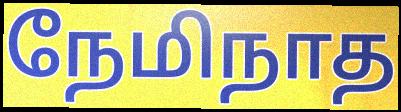
நேமிநாத